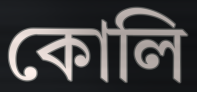
কোলি